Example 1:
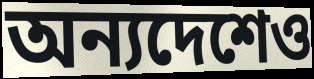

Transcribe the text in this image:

অন্যদেশেও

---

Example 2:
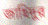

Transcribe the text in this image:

জাহিদুর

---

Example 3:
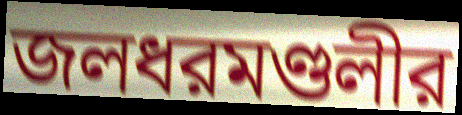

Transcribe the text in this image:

জলধরমণ্ডলীর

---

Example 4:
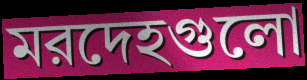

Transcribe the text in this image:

মরদেহগুলো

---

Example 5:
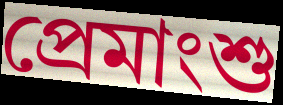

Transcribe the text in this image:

প্রেমাংশু